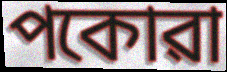
পকোৱা